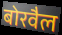
बोरवैल